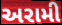
અરામી